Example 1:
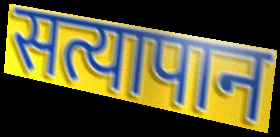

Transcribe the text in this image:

सत्यापान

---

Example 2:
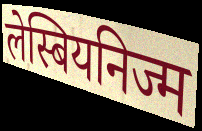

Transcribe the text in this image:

लेस्बियनिज्म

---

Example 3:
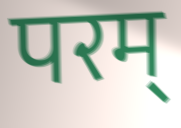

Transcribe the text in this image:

परम्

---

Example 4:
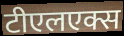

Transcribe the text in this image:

टीएलएक्स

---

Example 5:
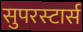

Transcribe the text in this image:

सुपरस्‍टार्स